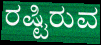
ರಷ್ಟಿರುವ